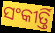
ସଂକୀର୍ତ୍ତି